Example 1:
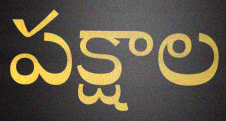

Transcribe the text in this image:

పక్షాల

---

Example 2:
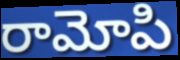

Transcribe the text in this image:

రామోపి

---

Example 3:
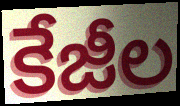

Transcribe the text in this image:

కేజీల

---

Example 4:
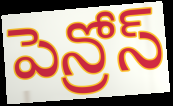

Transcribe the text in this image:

పెన్రోస్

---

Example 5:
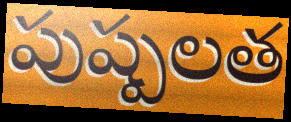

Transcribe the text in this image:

పుష్పలత